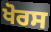
ਖੋਰਸ